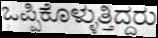
ಒಪ್ಪಿಕೊಳ್ಳುತ್ತಿದ್ದರು